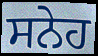
ਸਨੇਹ